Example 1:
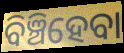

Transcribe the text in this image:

ବିଞ୍ଚିହେବା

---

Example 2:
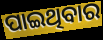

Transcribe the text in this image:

ପାଇଥିବାର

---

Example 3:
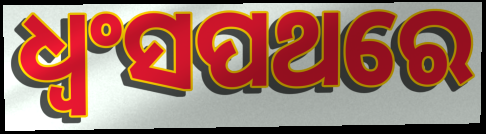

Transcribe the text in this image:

ଧ୍ବଂସପଥରେ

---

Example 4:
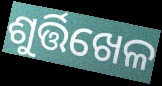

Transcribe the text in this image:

ଶୁର୍ତ୍ତିଖେଳ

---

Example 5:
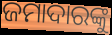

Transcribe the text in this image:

ଜମାଦାରଙ୍କୁ